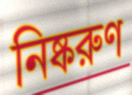
নিষ্করুণ